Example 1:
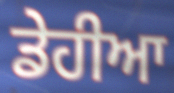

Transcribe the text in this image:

ਡੇਹੀਆ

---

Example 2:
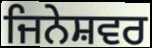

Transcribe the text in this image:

ਜਿਨੇਸ਼ਵਰ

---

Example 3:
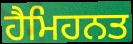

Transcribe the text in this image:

ਹੈਮਿਹਨਤ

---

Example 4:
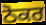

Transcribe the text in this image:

ਠੋਕਰ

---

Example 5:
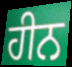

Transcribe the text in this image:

ਹੀਨ